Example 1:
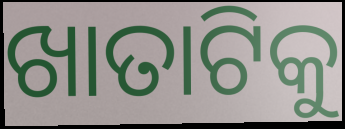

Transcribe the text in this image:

ଖାତାଟିକୁ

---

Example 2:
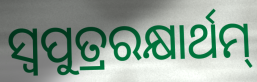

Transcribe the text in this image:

ସ୍ଵପୁତ୍ରରକ୍ଷାର୍ଥମ୍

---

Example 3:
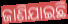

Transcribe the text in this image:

ଜାଣିଯାଇଛି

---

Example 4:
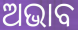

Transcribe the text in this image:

ଅଭାବ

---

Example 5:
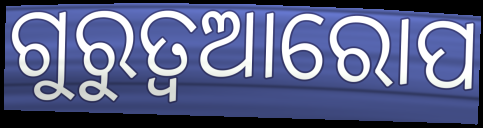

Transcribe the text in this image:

ଗୁରୁତ୍ଵଆରୋପ